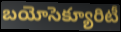
బయోసెక్యూరిటీ